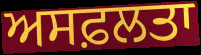
ਅਸਫ਼ਲਤਾ